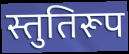
स्तुतिरूप